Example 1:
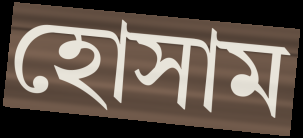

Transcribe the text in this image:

হোসাম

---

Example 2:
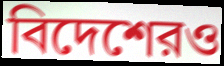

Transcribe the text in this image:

বিদেশেরও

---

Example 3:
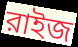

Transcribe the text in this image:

রাইজ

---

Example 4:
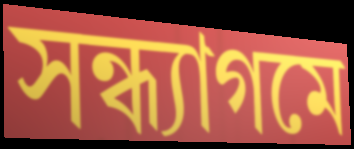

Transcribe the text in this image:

সন্ধ্যাগমে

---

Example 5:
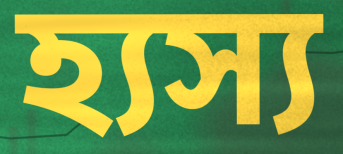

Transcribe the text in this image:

হ্যস্য